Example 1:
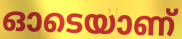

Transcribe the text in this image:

ഓടെയാണ്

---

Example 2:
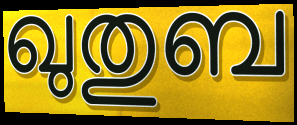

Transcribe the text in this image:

ഖുതുബ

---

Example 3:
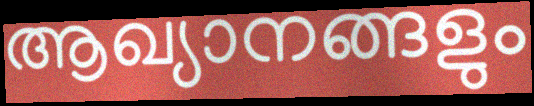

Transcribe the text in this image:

ആഖ്യാനങ്ങളും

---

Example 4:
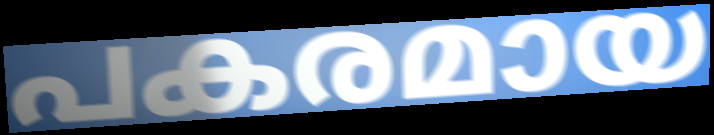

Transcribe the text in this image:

പകരമായ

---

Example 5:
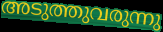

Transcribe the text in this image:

അടുത്തുവരുന്നു